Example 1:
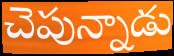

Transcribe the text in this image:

చెపున్నాడు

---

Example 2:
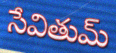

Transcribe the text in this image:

సేవితుమ్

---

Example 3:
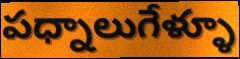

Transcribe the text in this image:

పధ్నాలుగేళ్ళూ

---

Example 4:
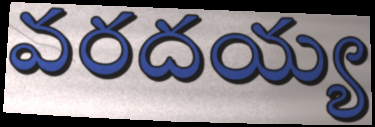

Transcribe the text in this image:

వరదయ్య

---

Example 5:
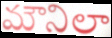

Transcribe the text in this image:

మౌనిలా